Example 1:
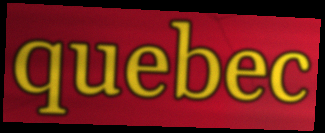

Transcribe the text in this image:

quebec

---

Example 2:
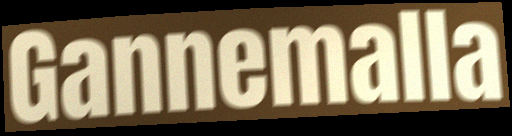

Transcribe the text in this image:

Gannemalla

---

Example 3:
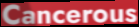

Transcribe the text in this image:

Cancerous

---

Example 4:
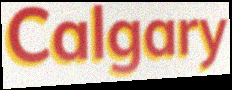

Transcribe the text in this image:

Calgary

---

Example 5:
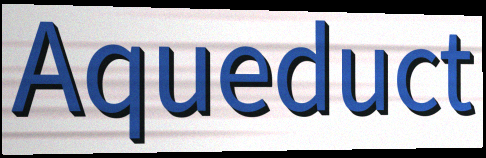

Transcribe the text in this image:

Aqueduct